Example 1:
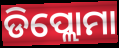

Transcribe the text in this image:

ଡିପ୍ଲୋମା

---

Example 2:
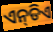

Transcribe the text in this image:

ଏନ୍‌ଡିଏ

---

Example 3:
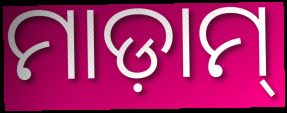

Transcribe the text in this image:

ମାଡ଼ାମ୍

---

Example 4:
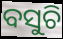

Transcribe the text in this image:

ବସୁଚି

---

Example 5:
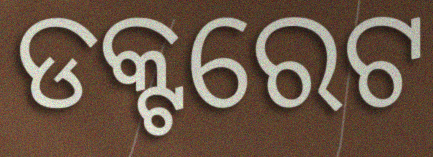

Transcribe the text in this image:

ଡକ୍ଟରେଟ